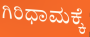
ಗಿರಿಧಾಮಕ್ಕೆ